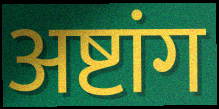
अष्टांग